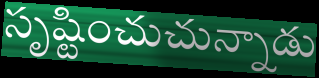
సృష్టించుచున్నాడు